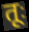
तूः